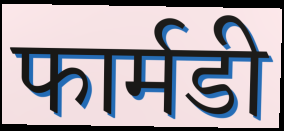
फार्मडी